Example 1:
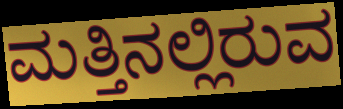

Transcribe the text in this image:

ಮತ್ತಿನಲ್ಲಿರುವ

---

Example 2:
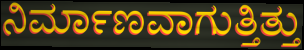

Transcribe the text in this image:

ನಿರ್ಮಾಣವಾಗುತ್ತಿತ್ತು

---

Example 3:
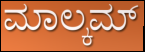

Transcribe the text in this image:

ಮಾಲ್ಕಮ್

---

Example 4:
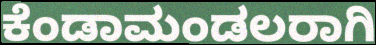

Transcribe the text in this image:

ಕೆಂಡಾಮಂಡಲರಾಗಿ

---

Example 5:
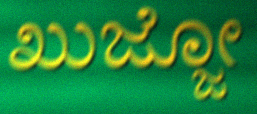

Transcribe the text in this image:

ಖುಜ್ಜೋ